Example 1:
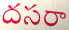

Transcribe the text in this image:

దసరా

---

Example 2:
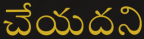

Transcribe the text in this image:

చేయదని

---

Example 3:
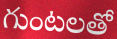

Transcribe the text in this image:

గుంటలతో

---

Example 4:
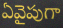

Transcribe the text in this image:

ఏవైపుగా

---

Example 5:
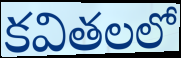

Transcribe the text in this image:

కవితలలో